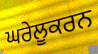
ਘਰੇਲੂਕਰਨ